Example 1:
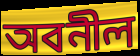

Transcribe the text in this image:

অবনীল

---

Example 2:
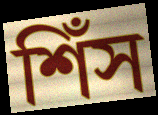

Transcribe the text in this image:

শিঁস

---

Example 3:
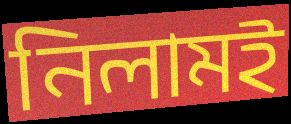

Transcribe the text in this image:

নিলামই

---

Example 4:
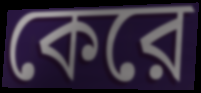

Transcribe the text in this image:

কেরে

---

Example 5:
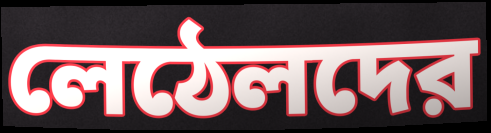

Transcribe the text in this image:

লেঠেলদের